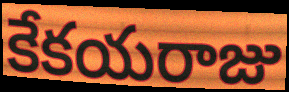
కేకయరాజు